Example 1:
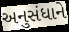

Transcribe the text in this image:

અનુસંધાને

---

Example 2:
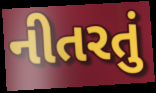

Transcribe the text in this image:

નીતરતું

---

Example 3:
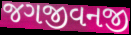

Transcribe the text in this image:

જગજીવનજી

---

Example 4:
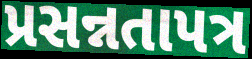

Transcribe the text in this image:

પ્રસન્નતાપત્ર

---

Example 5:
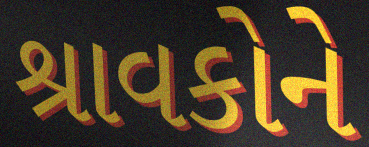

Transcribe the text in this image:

શ્રાવકોને